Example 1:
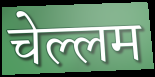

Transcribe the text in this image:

चेल्लम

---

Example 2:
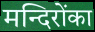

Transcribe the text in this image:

मन्दिरोंका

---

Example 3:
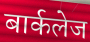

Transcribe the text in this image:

बार्कलेज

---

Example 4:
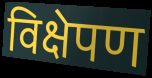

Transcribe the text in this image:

विक्षेपण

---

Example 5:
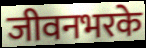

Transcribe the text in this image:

जीवनभरके